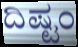
ದಿಷ್ಟಂ